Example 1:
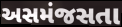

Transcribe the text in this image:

અસમંજસતા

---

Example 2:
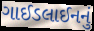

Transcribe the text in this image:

ગાઈડલાઈનનું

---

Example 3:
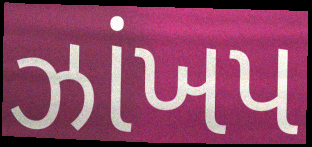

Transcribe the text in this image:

ઝાંખપ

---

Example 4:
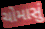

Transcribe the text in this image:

ચોમાસું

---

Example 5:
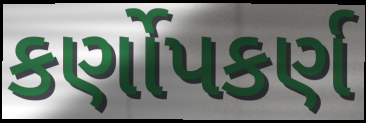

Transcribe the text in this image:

કર્ણોપકર્ણ